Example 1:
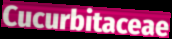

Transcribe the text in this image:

Cucurbitaceae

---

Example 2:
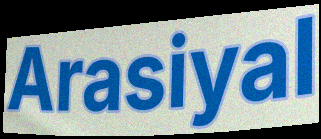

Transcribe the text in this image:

Arasiyal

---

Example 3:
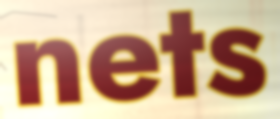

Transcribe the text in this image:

nets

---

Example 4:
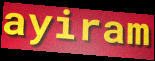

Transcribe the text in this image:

ayiram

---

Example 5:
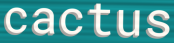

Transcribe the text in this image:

cactus